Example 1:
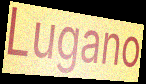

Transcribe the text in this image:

Lugano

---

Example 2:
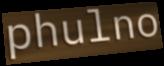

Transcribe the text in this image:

phulno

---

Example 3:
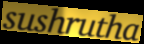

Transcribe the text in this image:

sushrutha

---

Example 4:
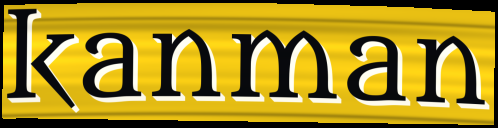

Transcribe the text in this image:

kanman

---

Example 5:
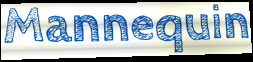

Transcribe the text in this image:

Mannequin